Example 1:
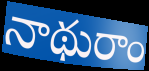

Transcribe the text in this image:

నాథురాం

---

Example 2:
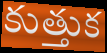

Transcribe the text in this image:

కుత్తుక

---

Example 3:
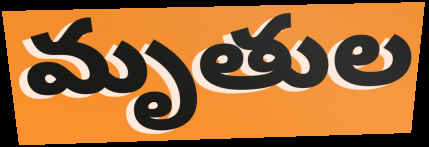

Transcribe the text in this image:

మృతుల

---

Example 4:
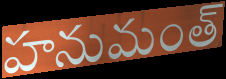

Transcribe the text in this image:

హనుమంత్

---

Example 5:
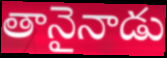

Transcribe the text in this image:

తానైనాడు